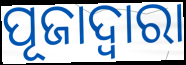
ପୂଜାଦ୍ୱାରା